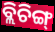
ବ୍ଲିଚିଙ୍ଗ୍